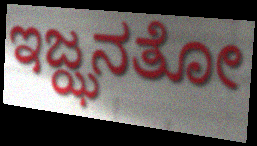
ಇಜ್ಝನತೋ